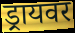
ड्रायवर